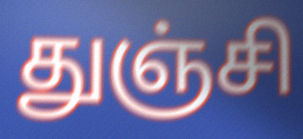
துஞ்சி